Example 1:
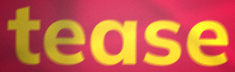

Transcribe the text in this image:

tease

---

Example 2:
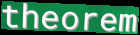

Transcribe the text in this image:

theorem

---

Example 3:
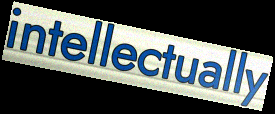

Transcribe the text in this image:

intellectually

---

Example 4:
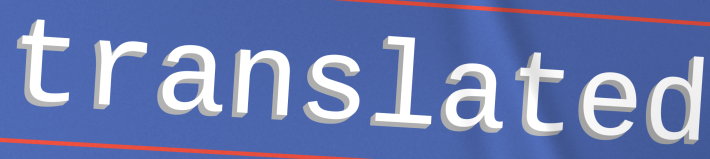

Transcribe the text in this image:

translated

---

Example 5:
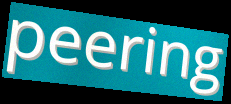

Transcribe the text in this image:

peering